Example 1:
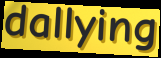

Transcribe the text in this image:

dallying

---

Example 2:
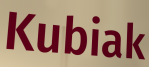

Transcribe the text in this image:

Kubiak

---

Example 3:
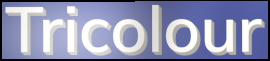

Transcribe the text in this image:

Tricolour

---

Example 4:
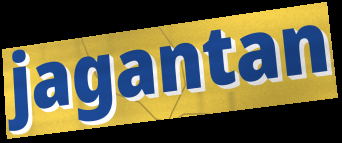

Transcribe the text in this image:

jagantan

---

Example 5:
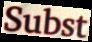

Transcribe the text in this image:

Subst